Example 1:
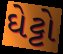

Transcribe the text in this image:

ઘેટ્ટો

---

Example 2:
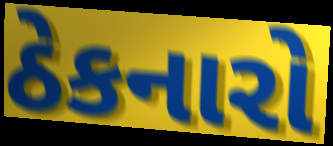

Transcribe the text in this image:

ઠેકનારો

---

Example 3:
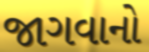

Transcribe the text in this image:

જાગવાનો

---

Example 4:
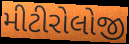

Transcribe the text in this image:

મીટીરોલોજી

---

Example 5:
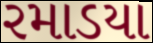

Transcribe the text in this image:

રમાડયા